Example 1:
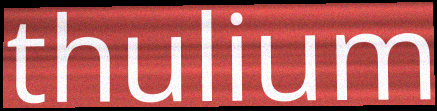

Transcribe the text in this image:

thulium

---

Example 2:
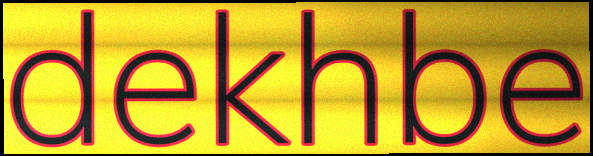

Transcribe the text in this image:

dekhbe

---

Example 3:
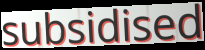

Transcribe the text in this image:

subsidised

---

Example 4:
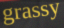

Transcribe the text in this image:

grassy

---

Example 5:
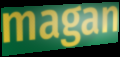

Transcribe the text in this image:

magan